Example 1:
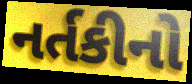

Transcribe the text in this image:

નર્તકીનો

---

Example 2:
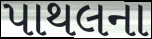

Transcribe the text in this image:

પાથલના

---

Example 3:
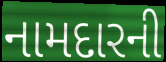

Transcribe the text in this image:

નામદારની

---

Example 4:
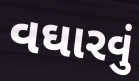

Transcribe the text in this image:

વઘારવું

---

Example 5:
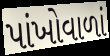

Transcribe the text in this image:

પાંખોવાળાં